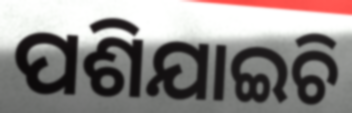
ପଶିଯାଇଚି